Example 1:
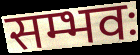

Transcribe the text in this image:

सम्भवः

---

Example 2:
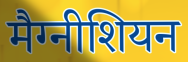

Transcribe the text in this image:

मैग्नीशियन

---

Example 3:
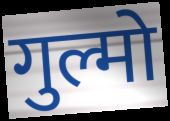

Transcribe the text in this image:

गुल्मो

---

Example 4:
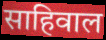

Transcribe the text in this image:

साहिवाल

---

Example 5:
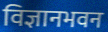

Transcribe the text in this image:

विज्ञानभवन